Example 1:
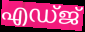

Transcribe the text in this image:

എഡ്ജ്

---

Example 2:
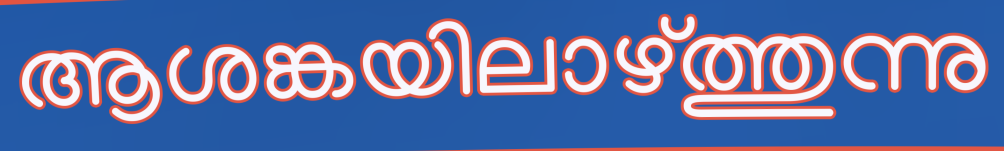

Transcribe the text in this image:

ആശങ്കയിലാഴ്ത്തുന്നു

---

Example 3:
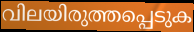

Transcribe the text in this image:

വിലയിരുത്തപ്പെടുക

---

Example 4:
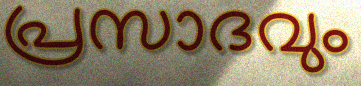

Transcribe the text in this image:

പ്രസാദവും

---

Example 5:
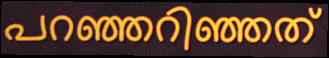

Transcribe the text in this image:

പറഞ്ഞറിഞ്ഞത്